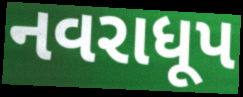
નવરાધૂપ